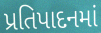
પ્રતિપાદનમાં